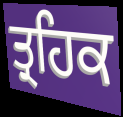
ਤ੍ਰਹਿਕ